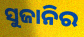
ସୁଜାନିର